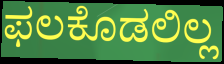
ಫಲಕೊಡಲಿಲ್ಲ